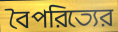
বৈপরিত্যের